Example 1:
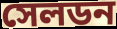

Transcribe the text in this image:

সেলডন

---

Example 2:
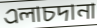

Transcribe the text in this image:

এলাচদানা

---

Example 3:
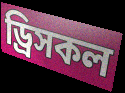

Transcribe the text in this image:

ড্রিসকল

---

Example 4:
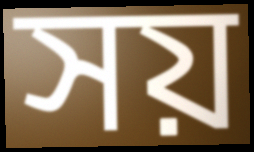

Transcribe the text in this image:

সয়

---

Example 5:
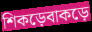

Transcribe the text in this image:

শিকড়েবাকড়ে